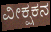
ವೀಕ್ಷಕನ